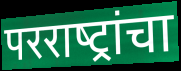
परराष्ट्रांचा